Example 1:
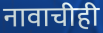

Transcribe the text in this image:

नावाचीही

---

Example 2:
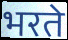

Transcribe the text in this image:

भरते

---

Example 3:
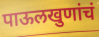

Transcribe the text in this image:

पाऊलखुणांचं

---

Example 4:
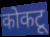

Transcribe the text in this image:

कोकटू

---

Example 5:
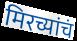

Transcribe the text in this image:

मिरच्यांचं